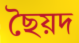
ছৈয়দ